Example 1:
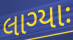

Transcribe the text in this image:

લાગ્યાઃ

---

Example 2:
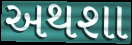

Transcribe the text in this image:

અથશા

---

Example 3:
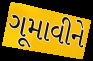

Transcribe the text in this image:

ગૂમાવીને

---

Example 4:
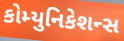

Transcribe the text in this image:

કોમ્યુનિકેશન્સ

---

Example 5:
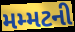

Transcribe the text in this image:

મમ્મટની